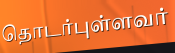
தொடர்புள்ளவர்